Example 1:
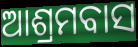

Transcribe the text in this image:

ଆଶ୍ରମବାସ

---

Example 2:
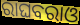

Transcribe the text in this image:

ରାଘବରାଓ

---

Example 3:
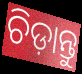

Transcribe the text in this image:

ଚିଡ଼ାନ୍ତୁ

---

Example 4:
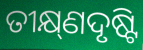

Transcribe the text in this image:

ତୀକ୍ଷ୍‌ଣଦୃଷ୍ଟି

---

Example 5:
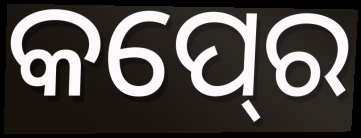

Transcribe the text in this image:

କପ୍‍ରେ